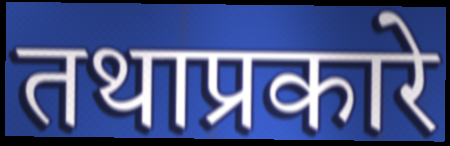
तथाप्रकारे